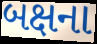
બક્ષના